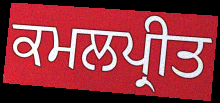
ਕਮਲਪ੍ਰੀਤ